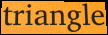
triangle